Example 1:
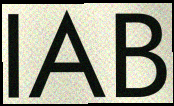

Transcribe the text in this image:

IAB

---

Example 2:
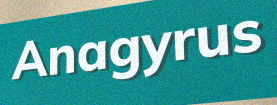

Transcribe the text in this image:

Anagyrus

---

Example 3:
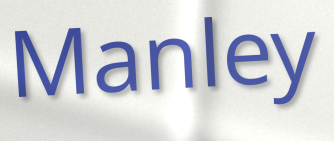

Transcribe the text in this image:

Manley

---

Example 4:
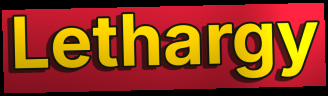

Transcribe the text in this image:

Lethargy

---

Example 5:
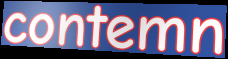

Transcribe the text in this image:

contemn